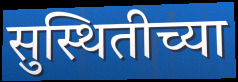
सुस्थितीच्या